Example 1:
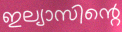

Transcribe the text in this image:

ഇല്യാസിന്റെ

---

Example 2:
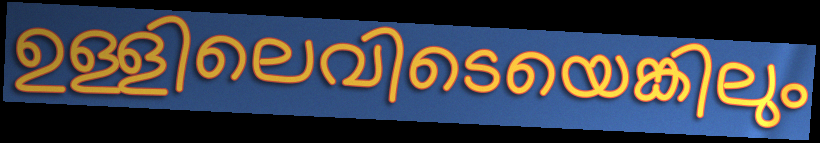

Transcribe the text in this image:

ഉള്ളിലെവിടെയെങ്കിലും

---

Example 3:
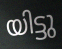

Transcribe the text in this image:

യിട്ടു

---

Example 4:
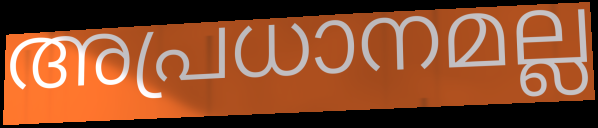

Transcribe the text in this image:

അപ്രധാനമല്ല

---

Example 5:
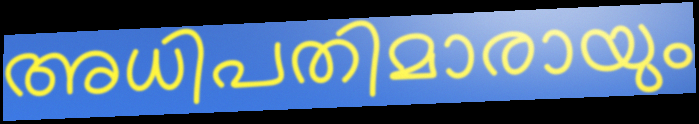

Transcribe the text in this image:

അധിപതിമാരായും